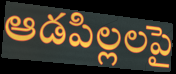
ఆడపిల్లలపై